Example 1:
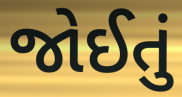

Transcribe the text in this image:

જોઈતું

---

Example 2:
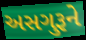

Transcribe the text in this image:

અસગુરૂને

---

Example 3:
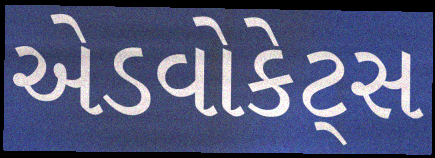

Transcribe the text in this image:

એડવોકેટ્સ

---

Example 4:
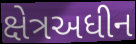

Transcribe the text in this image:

ક્ષેત્રઅધીન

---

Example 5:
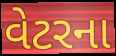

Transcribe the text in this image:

વેટરના